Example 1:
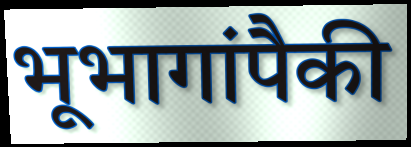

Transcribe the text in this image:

भूभागांपैकी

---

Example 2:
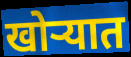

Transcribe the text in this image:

खोऱ्यात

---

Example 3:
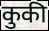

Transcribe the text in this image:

कुकी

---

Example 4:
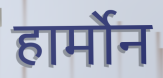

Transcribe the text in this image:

हार्मोन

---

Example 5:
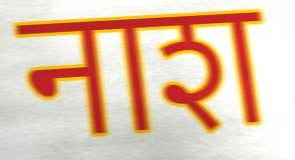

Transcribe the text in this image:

नाश